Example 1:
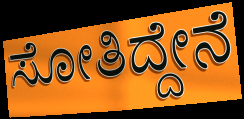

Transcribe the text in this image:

ಸೋತಿದ್ದೇನೆ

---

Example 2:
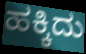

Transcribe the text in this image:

ಹಕ್ಕಿದು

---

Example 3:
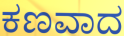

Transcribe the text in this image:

ಕಣವಾದ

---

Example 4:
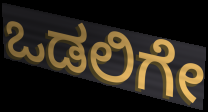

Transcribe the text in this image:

ಒಡಲಿಗೇ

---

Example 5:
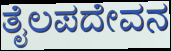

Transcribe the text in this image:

ತೈಲಪದೇವನ